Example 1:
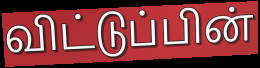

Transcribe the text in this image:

விட்டுப்பின்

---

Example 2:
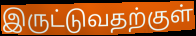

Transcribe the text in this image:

இருட்டுவதற்குள்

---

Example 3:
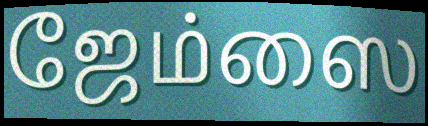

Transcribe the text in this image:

ஜேம்ஸை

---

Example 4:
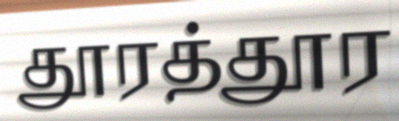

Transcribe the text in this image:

தூரத்தூர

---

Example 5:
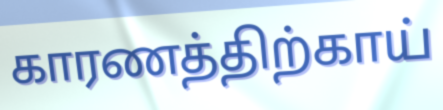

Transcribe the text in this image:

காரணத்திற்காய்